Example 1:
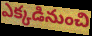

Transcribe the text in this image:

ఎక్కడినుంచి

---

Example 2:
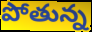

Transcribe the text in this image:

పోతున్న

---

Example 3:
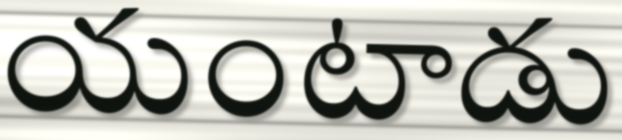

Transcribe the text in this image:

యంటాడు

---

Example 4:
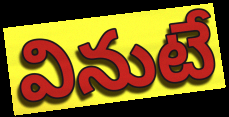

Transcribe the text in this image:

వినుటే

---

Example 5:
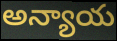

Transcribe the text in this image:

అన్యాయ